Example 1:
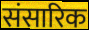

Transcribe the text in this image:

संसारिक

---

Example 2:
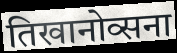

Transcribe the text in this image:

तिखानोव्सना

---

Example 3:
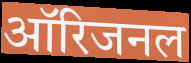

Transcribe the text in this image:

ऑरिजनल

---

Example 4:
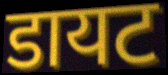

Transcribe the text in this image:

डायट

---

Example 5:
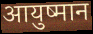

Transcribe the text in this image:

आयुष्मान